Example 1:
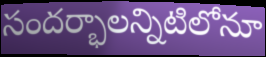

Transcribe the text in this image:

సందర్భాలన్నిటిలోనూ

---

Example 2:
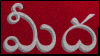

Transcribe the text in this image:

మీద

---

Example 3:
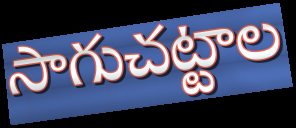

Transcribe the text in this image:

సాగుచట్టాల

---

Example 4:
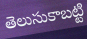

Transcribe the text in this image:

తెలుసుకాబట్టి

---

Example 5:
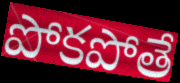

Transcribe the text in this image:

పోకపోతే